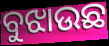
ବୁଝାଉଛ